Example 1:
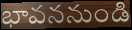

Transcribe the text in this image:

భావననుండి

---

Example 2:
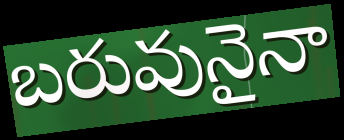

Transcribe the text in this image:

బరువునైనా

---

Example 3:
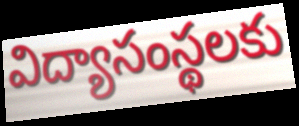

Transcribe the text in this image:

విద్యాసంస్థలకు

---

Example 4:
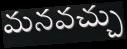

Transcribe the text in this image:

మనవచ్చు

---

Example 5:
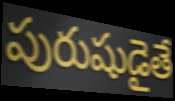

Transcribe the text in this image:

పురుషుడైతే